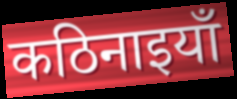
कठिनाइयाँ